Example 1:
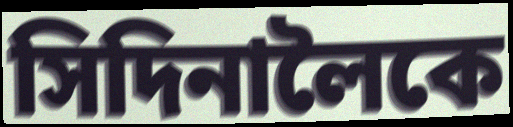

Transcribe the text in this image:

সিদিনালৈকে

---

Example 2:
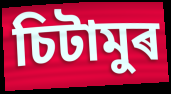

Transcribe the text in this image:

চিটামুৰ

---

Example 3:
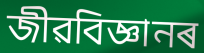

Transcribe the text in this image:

জীৱবিজ্ঞানৰ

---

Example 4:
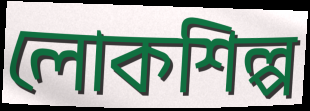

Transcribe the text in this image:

লোকশিল্প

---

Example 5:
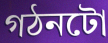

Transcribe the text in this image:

গঠনটো